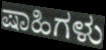
ಷಾಹಿಗಳು